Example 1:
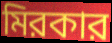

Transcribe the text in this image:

মিরকার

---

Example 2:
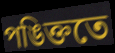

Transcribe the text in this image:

পঙিক্ততে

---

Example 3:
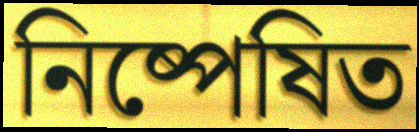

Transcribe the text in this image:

নিষ্পেষিত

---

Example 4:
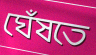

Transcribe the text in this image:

ঘেঁষতে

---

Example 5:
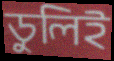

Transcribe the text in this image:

ডুলিই